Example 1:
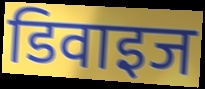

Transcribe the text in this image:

डिवाइज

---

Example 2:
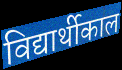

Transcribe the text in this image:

विद्यार्थीकाल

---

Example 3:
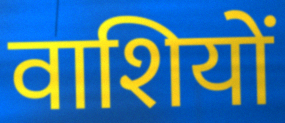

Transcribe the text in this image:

वाशियों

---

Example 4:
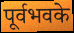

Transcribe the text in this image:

पूर्वभवके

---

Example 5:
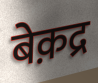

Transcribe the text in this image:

बेक़द्र